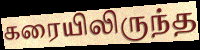
கரையிலிருந்த